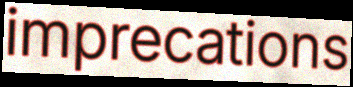
imprecations